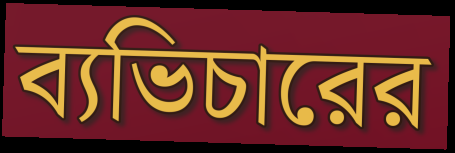
ব্যভিচারের